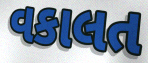
વકાલત